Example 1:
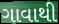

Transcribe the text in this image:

ગાવાથી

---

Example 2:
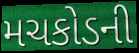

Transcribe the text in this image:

મચકોડની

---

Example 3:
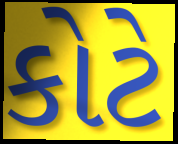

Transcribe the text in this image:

કોટે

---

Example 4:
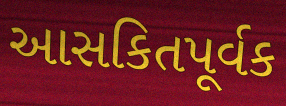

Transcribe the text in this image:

આસકિતપૂર્વક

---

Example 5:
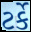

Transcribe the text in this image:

ટર્કે